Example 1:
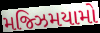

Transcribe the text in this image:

મજ્ઝિમયામો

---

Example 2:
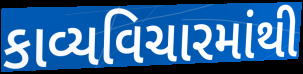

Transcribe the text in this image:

કાવ્યવિચારમાંથી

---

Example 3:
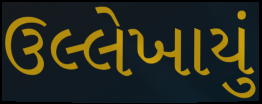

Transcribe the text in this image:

ઉલ્લેખાયું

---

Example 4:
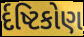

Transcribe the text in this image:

ર્દષ્ટિકોણ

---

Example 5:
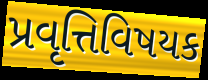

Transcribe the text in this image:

પ્રવૃત્તિવિષયક